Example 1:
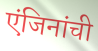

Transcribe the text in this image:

एंजिनांची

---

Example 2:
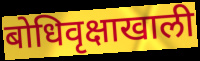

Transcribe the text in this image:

बोधिवृक्षाखाली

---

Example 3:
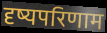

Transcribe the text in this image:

दृष्यपरिणाम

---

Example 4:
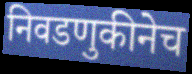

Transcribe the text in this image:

निवडणुकीनेच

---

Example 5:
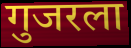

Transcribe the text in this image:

गुजरला